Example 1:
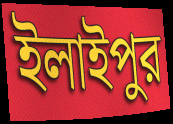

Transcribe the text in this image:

ইলাইপুর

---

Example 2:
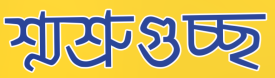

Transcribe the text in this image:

শ্মশ্রুগুচ্ছ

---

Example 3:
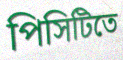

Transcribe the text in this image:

পিসিটিতে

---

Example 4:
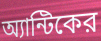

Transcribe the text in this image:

অ্যান্টিকের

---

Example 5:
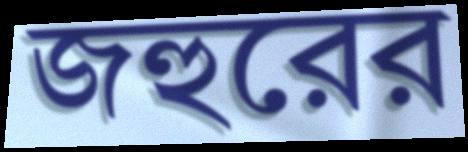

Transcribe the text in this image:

জহুরের